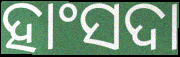
ହାଂସଦା